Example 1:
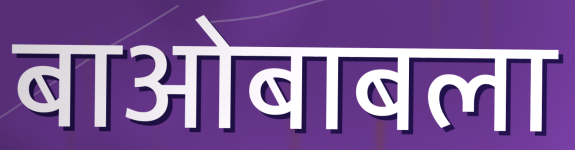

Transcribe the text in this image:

बाओबाबला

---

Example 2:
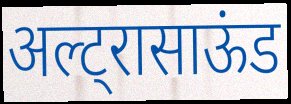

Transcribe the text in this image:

अल्ट्रासाऊंड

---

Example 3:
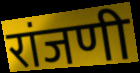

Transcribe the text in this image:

रांजणी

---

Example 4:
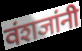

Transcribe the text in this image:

वंशजांनी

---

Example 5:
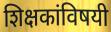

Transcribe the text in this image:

शिक्षकांविषयी